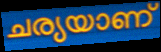
ചര്യയാണ്